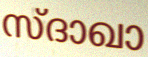
സ്ദാഖാ